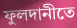
ফুলদানীতে